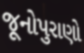
જૂનોપુરાણો